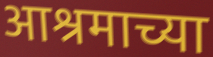
आश्रमाच्या